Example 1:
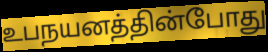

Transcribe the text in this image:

உபநயனத்தின்போது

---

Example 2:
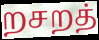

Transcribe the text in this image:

றசறத்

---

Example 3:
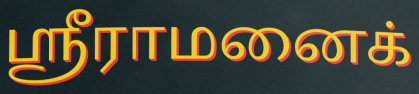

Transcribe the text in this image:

ஸ்ரீராமனைக்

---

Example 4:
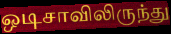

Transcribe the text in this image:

ஒடிசாவிலிருந்து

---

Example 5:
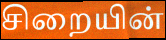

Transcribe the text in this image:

சிறையின்